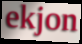
ekjon